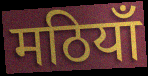
मठियाँ